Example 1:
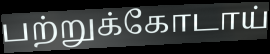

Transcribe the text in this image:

பற்றுக்கோடாய்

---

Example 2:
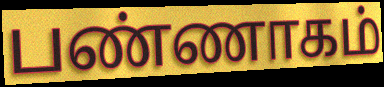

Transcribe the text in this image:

பண்ணாகம்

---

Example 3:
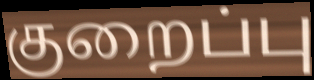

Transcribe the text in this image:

குறைப்பு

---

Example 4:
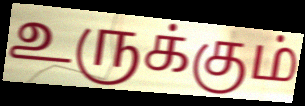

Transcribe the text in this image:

உருக்கும்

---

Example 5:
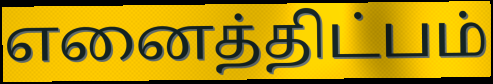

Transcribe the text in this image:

எனைத்திட்பம்